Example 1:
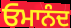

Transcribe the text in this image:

ਓਮਾਨੰਦ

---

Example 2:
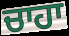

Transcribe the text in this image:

ਚਾਹਾ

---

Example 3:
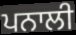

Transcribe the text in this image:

ਪਨਾਲੀ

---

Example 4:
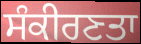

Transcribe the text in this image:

ਸੰਕੀਰਣਤਾ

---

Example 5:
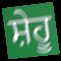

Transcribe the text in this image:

ਸ਼ੇਹੂ